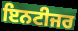
ਇਨਟੀਜਰ